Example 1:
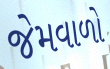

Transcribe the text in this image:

જેમવાળો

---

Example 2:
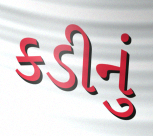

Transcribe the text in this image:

કડીનું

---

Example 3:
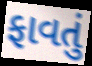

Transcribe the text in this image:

ફાવતું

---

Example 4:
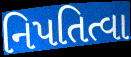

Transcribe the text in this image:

નિપતિત્વા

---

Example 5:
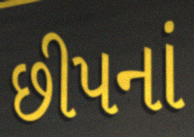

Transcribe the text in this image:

છીપનાં